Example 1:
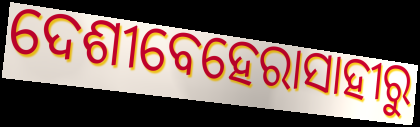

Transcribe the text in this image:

ଦେଶୀବେହେରାସାହୀରୁ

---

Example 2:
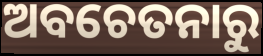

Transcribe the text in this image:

ଅବଚେତନାରୁ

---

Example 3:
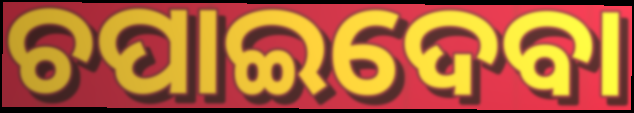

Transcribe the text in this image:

ଚପାଇଦେବା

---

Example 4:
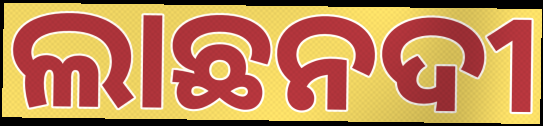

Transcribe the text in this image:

ଲାଛନଦୀ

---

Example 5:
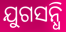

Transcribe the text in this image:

ଯୁଗସନ୍ଧି